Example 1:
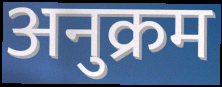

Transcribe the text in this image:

अनुक्रम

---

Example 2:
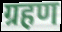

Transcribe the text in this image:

ग्रहण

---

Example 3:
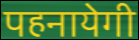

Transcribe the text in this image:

पहनायेगी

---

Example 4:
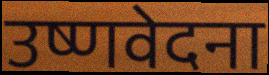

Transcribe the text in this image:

उष्णवेदना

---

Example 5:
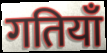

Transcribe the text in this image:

गतियाँ